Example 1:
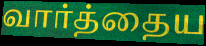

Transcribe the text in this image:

வார்த்தைய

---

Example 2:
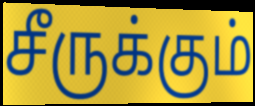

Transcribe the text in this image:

சீருக்கும்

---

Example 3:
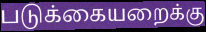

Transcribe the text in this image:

படுக்கையறைக்கு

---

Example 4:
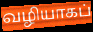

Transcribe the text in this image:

வழியாகப்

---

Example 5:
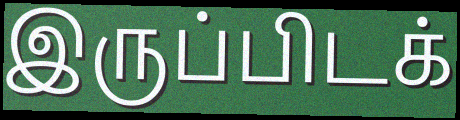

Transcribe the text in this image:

இருப்பிடக்